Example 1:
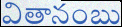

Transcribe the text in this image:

వితానంబు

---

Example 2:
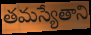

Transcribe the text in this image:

తమస్యేతాని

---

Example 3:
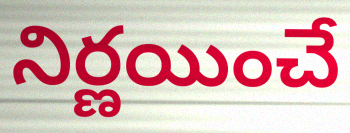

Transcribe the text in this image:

నిర్ణయించే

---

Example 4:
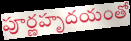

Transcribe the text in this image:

పూర్ణహృదయంతో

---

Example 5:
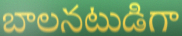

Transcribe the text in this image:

బాలనటుడిగా